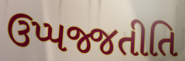
ઉપ્પજ્જતીતિ